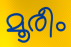
മൂരീം